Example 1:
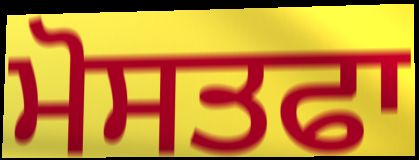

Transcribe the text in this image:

ਮੋਸਤਫਾ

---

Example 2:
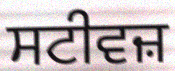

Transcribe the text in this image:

ਸਟੀਵਜ਼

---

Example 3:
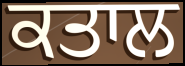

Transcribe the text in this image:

ਕਤਾਲ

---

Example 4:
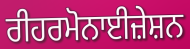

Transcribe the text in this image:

ਰੀਹਰਮੋਨਾਈਜ਼ੇਸ਼ਨ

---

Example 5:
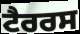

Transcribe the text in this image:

ਟੈਰਰਸ